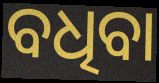
ବଧିବା